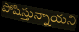
పోషిస్తున్నాయని